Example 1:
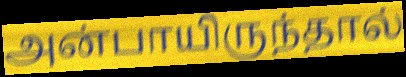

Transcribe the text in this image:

அன்பாயிருந்தால்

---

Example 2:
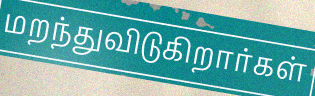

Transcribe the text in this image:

மறந்துவிடுகிறார்கள்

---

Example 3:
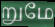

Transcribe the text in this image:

றுமே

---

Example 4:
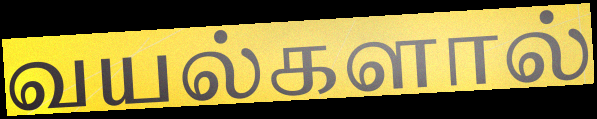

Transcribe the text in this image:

வயல்களால்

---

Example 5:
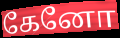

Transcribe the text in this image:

கேனோ